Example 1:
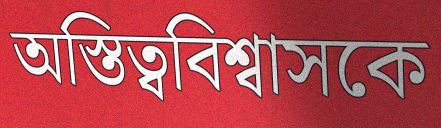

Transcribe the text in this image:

অস্তিত্ববিশ্বাসকে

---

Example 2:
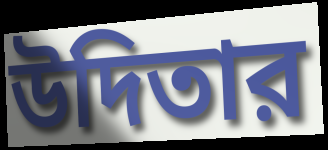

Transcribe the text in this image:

উদিতার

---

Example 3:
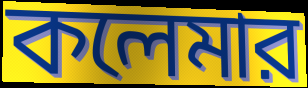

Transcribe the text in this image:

কলেমার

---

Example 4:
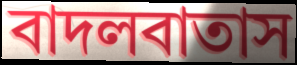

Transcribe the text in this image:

বাদলবাতাস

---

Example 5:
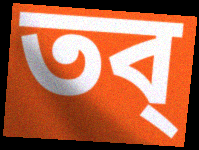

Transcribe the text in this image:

তব্